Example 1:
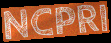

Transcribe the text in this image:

NCPRI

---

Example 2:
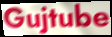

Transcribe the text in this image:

Gujtube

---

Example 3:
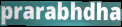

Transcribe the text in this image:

prarabhdha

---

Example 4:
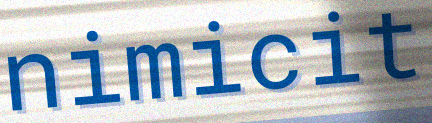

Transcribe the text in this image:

nimicit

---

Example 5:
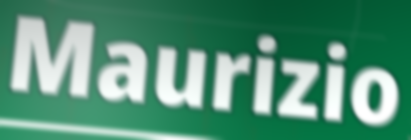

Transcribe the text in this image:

Maurizio